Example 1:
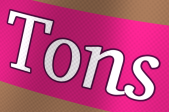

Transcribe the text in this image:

Tons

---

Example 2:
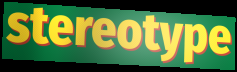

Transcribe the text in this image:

stereotype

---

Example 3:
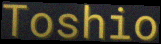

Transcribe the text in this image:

Toshio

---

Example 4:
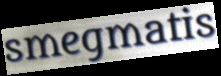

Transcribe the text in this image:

smegmatis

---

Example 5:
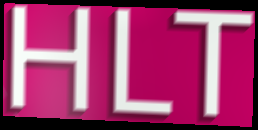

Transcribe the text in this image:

HLT